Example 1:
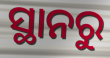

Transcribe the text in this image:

ସ୍ଥାନରୁ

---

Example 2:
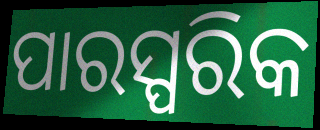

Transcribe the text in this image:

ପାରସ୍ପରିକ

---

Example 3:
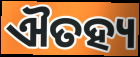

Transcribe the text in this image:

ଐତହ୍ୟ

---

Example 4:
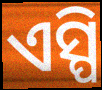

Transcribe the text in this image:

ଏସ୍ପି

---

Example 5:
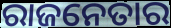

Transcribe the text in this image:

ରାଜନେତାର